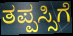
ತಪ್ಪಸ್ಸಿಗೆ